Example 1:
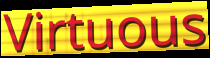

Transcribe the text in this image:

Virtuous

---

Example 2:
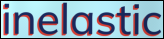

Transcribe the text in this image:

inelastic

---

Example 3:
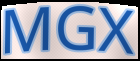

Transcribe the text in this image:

MGX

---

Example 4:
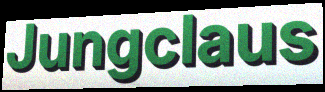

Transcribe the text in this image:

Jungclaus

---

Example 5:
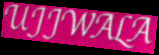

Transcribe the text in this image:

UJJWALA